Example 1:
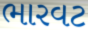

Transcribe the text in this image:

ભારવટ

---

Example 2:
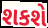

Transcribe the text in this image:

શકશે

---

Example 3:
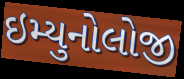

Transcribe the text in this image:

ઇમ્યુનોલોજી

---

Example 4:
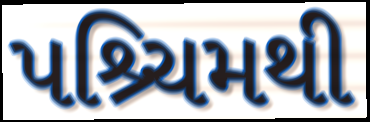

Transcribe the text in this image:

પશ્ર્ચિમથી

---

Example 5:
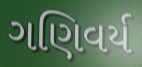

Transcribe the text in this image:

ગણિવર્ય